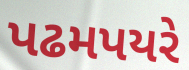
પઢમપયરે